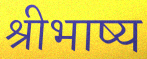
श्रीभाष्य